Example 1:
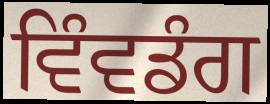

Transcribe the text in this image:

ਵਿੰਵਡੰਗ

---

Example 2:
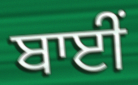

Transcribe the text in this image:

ਬਾਈਂ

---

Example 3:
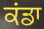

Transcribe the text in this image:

ਕਂਡਾ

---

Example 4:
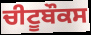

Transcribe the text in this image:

ਚੀਟੂਬੌਕਸ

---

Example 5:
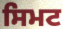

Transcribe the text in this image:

ਸਿਮਟ